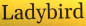
Ladybird